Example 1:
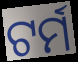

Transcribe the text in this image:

ଟର୍ମ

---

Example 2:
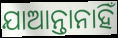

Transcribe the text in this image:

ଯାଆନ୍ତାନାହିଁ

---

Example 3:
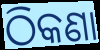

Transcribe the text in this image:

ଠିକଣା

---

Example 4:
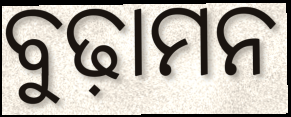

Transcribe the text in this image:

ବୁଢ଼ାମନ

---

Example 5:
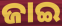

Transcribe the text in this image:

ଜାଇ